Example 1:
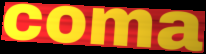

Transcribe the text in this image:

coma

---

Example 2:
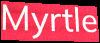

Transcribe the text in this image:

Myrtle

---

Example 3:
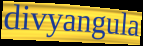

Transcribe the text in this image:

divyangula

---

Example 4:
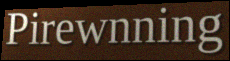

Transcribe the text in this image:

Pirewnning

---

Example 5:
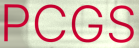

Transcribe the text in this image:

PCGS